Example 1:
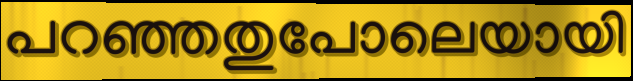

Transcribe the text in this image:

പറഞ്ഞതുപോലെയായി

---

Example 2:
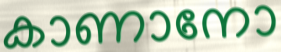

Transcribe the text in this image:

കാണാനോ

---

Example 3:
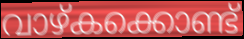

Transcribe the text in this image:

വാഴ്കക്കൊണ്ട്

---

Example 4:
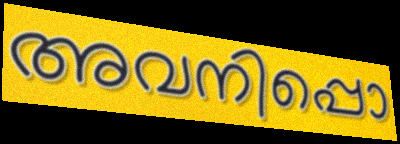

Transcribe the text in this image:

അവനിപ്പൊ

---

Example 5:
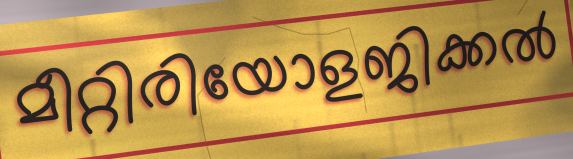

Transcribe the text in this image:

മീറ്റിരിയോളജിക്കൽ